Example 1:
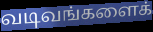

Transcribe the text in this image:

வடிவங்களைக்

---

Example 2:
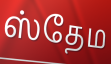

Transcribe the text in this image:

ஸ்தேம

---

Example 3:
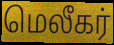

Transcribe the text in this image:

மெலீகர்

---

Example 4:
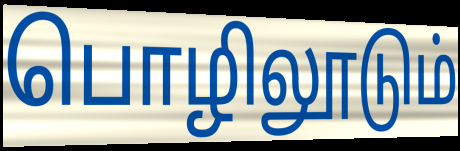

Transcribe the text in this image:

பொழிலூடும்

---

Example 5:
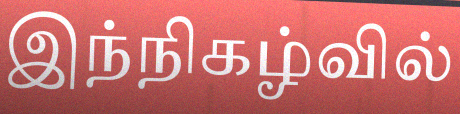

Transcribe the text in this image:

இந்நிகழ்வில்